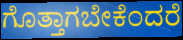
ಗೊತ್ತಾಗಬೇಕೆಂದರೆ